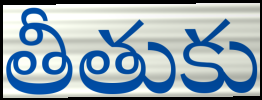
తీతుకు